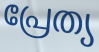
പ്രേത്യ